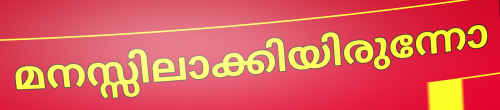
മനസ്സിലാക്കിയിരുന്നോ